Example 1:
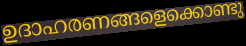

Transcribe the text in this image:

ഉദാഹരണങ്ങളെക്കൊണ്ടു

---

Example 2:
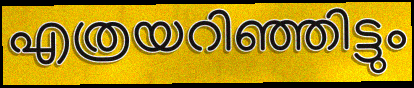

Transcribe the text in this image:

എത്രയറിഞ്ഞിട്ടും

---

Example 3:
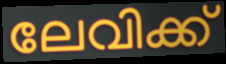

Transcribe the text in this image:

ലേവിക്ക്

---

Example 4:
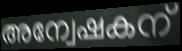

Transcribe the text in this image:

അന്വേഷകന്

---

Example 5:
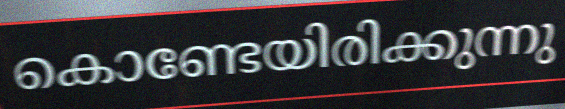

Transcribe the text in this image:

കൊണ്ടേയിരിക്കുന്നു